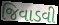
જિવાડવી